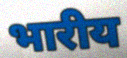
भारीय